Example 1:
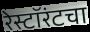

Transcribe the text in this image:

रेस्टॉरंटचा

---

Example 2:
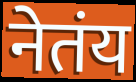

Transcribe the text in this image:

नेतंय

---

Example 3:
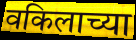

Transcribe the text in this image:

वकिलाच्या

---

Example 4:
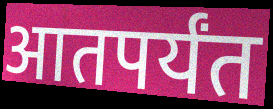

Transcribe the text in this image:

आतपर्यंत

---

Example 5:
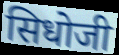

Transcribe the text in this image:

सिधोजी